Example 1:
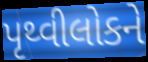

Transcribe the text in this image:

પૃથ્વીલોકને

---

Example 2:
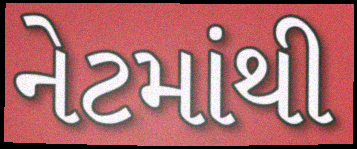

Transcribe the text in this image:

નેટમાંથી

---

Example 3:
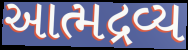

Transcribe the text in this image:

આત્મદ્રવ્ય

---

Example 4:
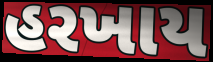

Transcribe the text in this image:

હરખાય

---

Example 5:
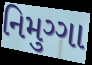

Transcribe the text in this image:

નિમુગ્ગા